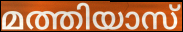
മത്തിയാസ്